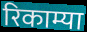
रिकाम्या